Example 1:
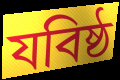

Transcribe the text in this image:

যবিষ্ঠ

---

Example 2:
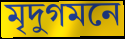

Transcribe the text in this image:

মৃদুগমনে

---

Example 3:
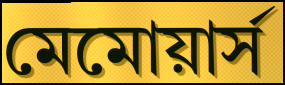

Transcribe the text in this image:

মেমোয়ার্স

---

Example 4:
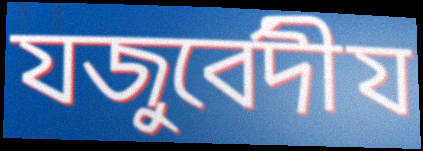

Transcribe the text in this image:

যজুর্বেদীয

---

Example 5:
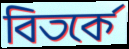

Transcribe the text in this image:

বিতর্কে